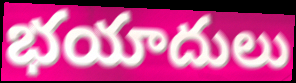
భయాదులు